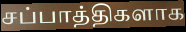
சப்பாத்திகளாக